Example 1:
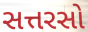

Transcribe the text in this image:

સત્તરસો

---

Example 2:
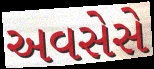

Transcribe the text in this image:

અવસેસે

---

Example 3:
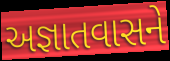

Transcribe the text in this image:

અજ્ઞાતવાસને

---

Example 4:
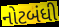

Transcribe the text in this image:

નોટબંધી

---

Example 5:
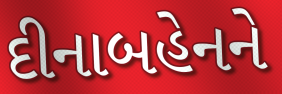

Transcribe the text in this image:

દીનાબહેનને